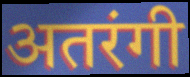
अतरंगी